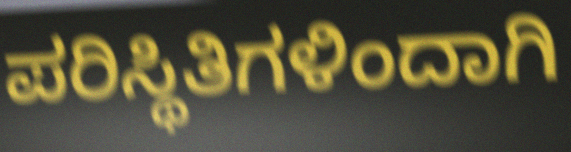
ಪರಿಸ್ಥಿತಿಗಳಿಂದಾಗಿ